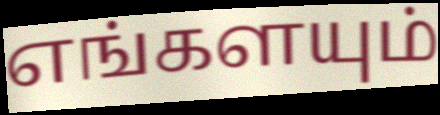
எங்களயும்